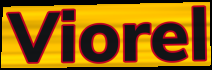
Viorel